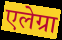
एलेग्रा